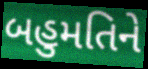
બહુમતિને